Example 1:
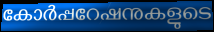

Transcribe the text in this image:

കോർപ്പറേഷനുകളുടെ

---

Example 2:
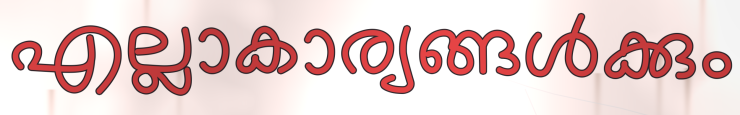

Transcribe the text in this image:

എല്ലാകാര്യങ്ങൾക്കും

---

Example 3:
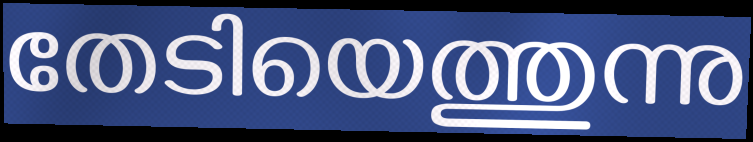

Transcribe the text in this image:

തേടിയെത്തുന്നു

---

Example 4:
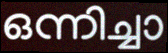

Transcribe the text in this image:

ഒന്നിച്ചാ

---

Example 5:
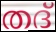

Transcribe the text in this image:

തദ്